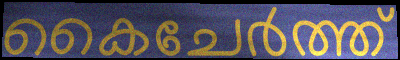
കൈചേർത്ത്